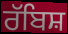
ਰੱਬਿਸ਼